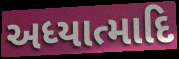
અધ્યાત્માદિ